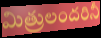
మిత్రులందరినీ